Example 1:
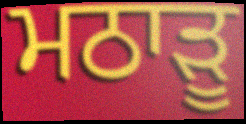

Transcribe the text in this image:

ਮਠਾੜੂ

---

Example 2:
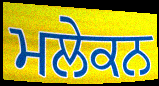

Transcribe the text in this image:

ਮਲੇਕਨ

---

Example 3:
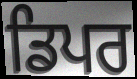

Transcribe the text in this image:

ਡਿਪਰ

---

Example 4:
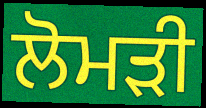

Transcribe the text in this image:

ਲੋਮੜੀ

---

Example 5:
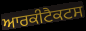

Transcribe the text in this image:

ਆਰਕੀਟੈਕਟਸ